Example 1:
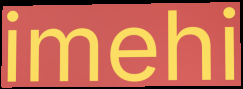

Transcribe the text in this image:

imehi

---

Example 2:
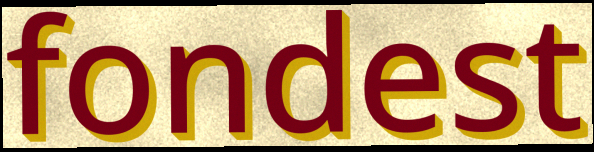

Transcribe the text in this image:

fondest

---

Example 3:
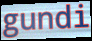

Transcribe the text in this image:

gundi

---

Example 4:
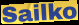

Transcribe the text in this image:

Sailko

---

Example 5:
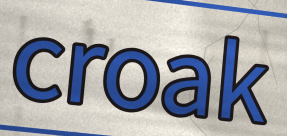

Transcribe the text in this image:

croak